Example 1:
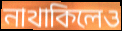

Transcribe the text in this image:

নাথাকিলেও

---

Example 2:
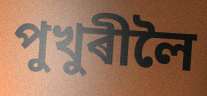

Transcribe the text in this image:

পুখুৰীলৈ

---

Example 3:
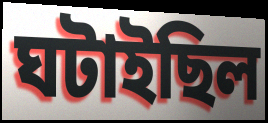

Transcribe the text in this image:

ঘটাইছিল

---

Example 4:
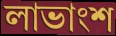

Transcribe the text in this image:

লাভাংশ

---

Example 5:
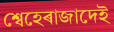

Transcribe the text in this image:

শ্বেহেৰাজাদেই